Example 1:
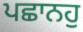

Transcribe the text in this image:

ਪਛਾਨਹੁ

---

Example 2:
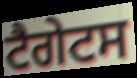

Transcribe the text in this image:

ਟੈਗੇਟਸ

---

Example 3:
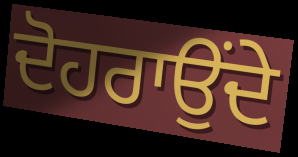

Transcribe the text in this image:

ਦੋਹਰਾਉਂਦੇ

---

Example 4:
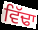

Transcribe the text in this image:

ਵਿੱਢਾ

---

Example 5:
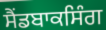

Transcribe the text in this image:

ਸੈਂਡਬਾਕਸਿੰਗ